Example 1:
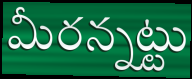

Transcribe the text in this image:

మీరన్నట్టు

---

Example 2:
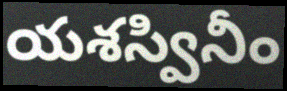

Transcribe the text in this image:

యశస్వినీం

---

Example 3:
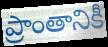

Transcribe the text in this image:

ప్రాంతానికీ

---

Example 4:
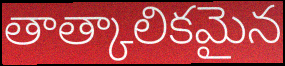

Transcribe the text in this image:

తాత్కాలికమైన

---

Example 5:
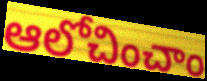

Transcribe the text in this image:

ఆలోచించాం